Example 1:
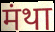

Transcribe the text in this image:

मंथा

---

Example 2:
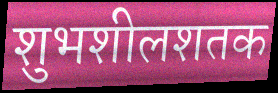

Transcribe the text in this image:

शुभशीलशतक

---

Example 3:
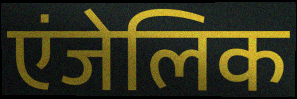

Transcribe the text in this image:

एंजेलिक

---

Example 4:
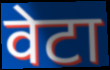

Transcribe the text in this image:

वेटा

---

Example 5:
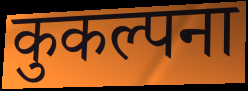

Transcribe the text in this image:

कुकल्पना